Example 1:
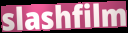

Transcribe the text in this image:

slashfilm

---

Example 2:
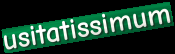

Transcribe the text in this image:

usitatissimum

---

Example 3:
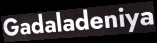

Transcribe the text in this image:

Gadaladeniya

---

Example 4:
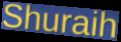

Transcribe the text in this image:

Shuraih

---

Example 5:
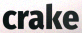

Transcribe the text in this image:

crake